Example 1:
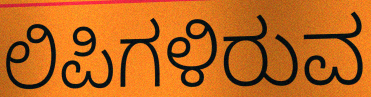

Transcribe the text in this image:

ಲಿಪಿಗಳಿರುವ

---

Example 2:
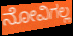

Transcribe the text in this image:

ನೋವಿಗಲ್ಲ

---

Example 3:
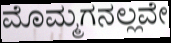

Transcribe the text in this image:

ಮೊಮ್ಮಗನಲ್ಲವೇ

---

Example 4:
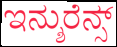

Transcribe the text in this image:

ಇನ್ಶುರೆನ್ಸ್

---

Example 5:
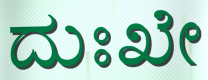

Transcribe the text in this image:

ದುಃಖೇ